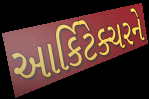
આર્કિટેક્ચરને